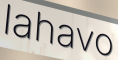
lahavo